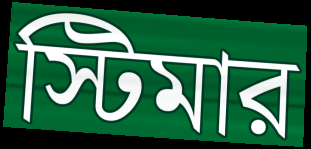
স্টিমার